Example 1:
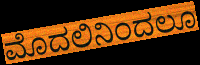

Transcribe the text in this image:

ಮೊದಲಿನಿಂದಲೂ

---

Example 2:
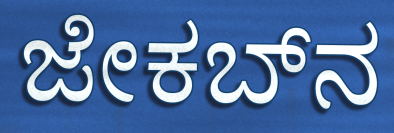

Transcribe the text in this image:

ಜೇಕಬ್‌ನ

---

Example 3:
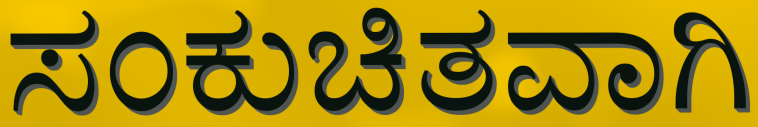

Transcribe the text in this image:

ಸಂಕುಚಿತವಾಗಿ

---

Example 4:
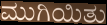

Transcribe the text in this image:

ಮುಗಿಯಿತು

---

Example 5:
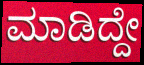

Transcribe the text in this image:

ಮಾಡಿದ್ದೇ